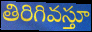
తిరిగివస్తూ